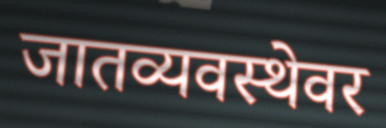
जातव्यवस्थेवर